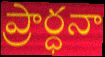
ప్రార్ధనా